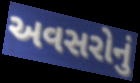
અવસરોનું